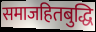
समाजहितबुद्धि